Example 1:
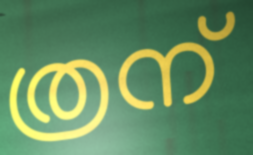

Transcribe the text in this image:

ത്രന്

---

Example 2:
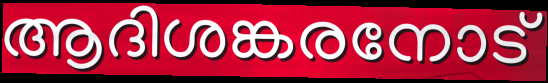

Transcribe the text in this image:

ആദിശങ്കരനോട്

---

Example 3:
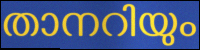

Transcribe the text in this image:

താനറിയും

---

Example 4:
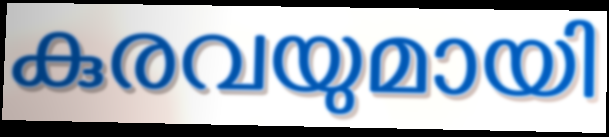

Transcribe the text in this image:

കുരവയുമായി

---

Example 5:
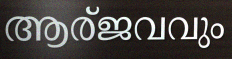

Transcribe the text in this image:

ആര്ജവവും